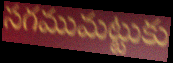
సగముమట్టుకు